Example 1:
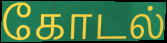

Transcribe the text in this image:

கோடல்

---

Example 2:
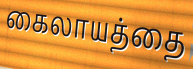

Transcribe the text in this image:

கைலாயத்தை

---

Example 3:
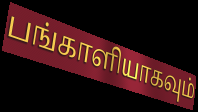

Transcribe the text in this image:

பங்காளியாகவும்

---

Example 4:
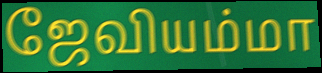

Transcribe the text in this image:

ஜேவியம்மா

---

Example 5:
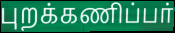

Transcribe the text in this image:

புறக்கணிப்பர்